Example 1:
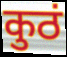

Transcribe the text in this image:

कुठं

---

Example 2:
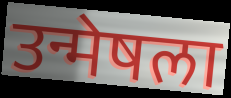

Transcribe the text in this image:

उन्मेषला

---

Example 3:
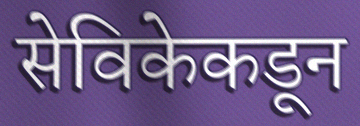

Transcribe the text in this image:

सेविकेकडून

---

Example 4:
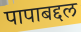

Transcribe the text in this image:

पापाबद्दल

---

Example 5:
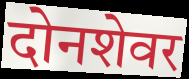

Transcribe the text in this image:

दोनशेवर